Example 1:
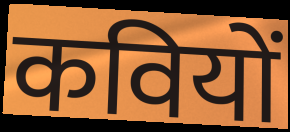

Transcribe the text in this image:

कवियों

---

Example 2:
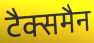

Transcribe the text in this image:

टैक्समैन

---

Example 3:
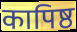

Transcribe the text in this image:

कापिष्ठ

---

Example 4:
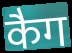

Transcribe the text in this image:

कैग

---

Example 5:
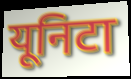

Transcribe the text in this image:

यूनिटा